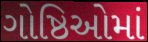
ગોષ્ઠિઓમાં